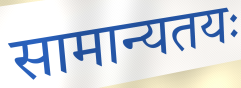
सामान्यतयः